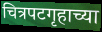
चित्रपटगृहाच्या